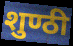
शुण्ठी